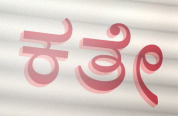
ಕತೇ